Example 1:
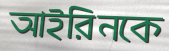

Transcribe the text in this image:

আইরিনকে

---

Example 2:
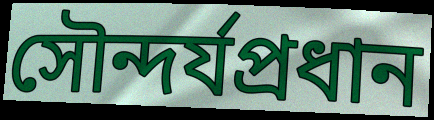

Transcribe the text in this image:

সৌন্দর্যপ্রধান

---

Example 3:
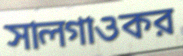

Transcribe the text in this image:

সালগাওকর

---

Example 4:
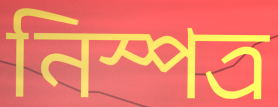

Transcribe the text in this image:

নিস্পত্র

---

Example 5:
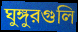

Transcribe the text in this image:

ঘুঙ্গুরগুলি